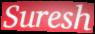
Suresh